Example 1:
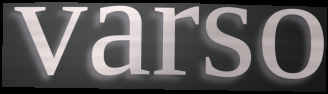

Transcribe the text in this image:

varso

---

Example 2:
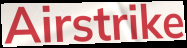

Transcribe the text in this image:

Airstrike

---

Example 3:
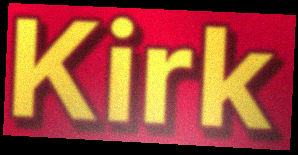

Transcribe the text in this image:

Kirk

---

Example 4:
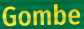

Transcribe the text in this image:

Gombe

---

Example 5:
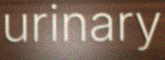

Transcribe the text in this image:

urinary